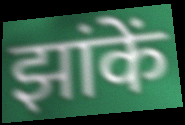
झांकें